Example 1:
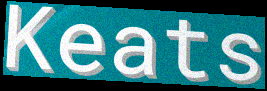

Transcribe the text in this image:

Keats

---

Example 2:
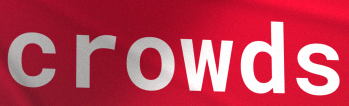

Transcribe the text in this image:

crowds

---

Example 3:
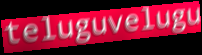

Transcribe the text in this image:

teluguvelugu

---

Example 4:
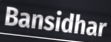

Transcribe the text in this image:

Bansidhar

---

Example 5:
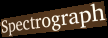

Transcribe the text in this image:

Spectrograph